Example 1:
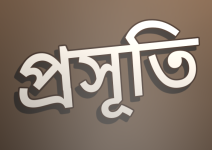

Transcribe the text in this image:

প্ৰসূতি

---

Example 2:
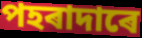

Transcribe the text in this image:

পহৰাদাৰে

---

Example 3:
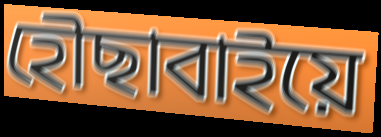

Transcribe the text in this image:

হৌছাবাইয়ে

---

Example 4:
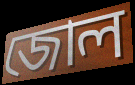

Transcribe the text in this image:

জোল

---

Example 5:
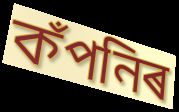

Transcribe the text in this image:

কঁপনিৰ